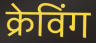
क्रेविंग